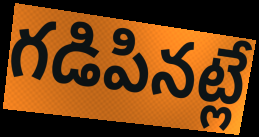
గడిపినట్లే